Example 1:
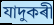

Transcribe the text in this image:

যাদুকৰী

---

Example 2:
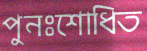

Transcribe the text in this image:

পুনঃশোধিত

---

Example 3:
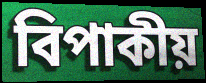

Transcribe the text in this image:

বিপাকীয়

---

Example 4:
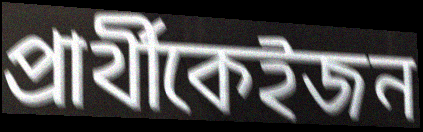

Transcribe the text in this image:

প্ৰাৰ্থীকেইজন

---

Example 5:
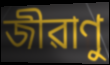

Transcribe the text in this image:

জীৱাণু